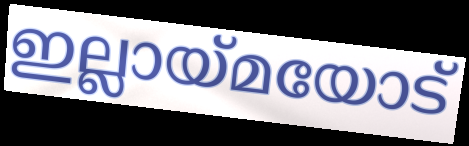
ഇല്ലായ്മയോട്